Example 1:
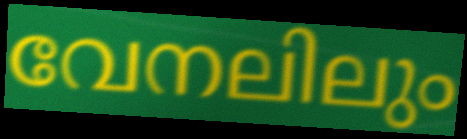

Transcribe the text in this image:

വേനലിലും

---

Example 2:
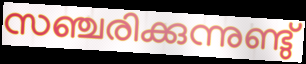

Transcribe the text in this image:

സഞ്ചരിക്കുന്നുണ്ടു്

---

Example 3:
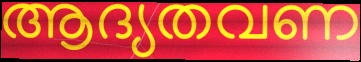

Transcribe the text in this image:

ആദ്യതവണ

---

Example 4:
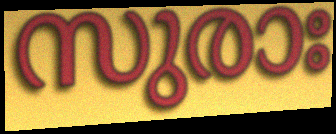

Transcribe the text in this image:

സുരാഃ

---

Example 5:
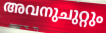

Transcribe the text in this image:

അവനുചുറ്റും